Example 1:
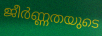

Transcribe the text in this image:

ജീർണ്ണതയുടെ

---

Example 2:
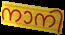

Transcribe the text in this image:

നാനി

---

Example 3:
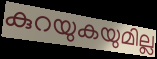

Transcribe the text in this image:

കുറയുകയുമില്ല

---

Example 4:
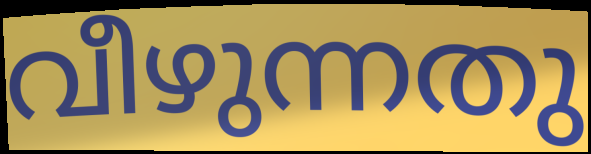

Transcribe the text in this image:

വീഴുന്നതു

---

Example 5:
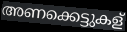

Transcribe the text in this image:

അണക്കെട്ടുകള്